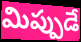
మిప్పుడే